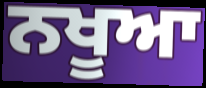
ਨਖੂਆ